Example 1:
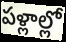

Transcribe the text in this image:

పళ్లాల్లో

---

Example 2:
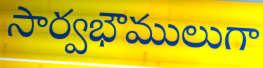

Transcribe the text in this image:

సార్వభౌములుగా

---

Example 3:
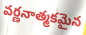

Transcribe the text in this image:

వర్ణనాత్మకమైన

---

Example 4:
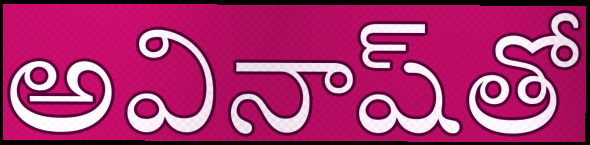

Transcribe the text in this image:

అవినాష్‌తో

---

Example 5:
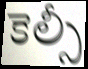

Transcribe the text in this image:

కెల్సీ